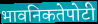
भावनिकतेपोटी